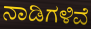
ನಾಡಿಗಳಿವೆ